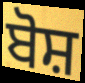
ਬੋਸ਼